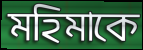
মহিমাকে